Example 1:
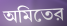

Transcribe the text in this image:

অমিতের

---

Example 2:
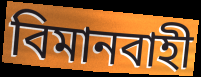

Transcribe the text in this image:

বিমানবাহী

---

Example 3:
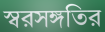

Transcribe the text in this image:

স্বরসঙ্গতির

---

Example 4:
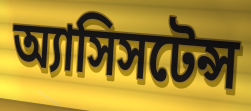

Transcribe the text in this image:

অ্যাসিসটেন্স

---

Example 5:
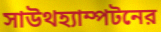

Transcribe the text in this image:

সাউথহ্যাম্পটনের